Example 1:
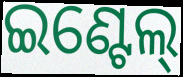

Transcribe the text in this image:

ଇଣ୍ଟେଲ୍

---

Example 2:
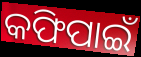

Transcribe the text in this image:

କଫିପାଇଁ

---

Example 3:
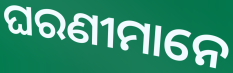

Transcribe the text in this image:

ଘରଣୀମାନେ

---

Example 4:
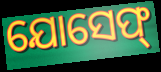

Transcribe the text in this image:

ଯୋସେଫ୍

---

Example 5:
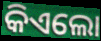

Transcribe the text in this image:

କିଏଲୋ